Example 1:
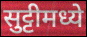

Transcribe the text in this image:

सुट्टीमध्ये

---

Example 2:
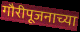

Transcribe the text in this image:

गौरीपूजनाच्या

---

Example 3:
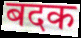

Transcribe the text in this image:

बदक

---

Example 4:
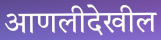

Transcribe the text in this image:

आणलीदेखील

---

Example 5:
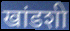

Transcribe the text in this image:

खांडशी